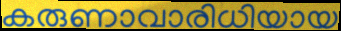
കരുണാവാരിധിയായ